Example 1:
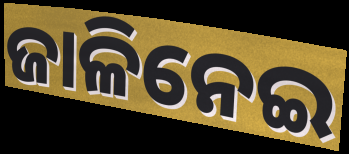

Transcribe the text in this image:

ଜାଳିନେଇ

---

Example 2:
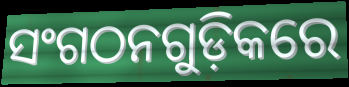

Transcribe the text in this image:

ସଂଗଠନଗୁଡ଼ିକରେ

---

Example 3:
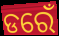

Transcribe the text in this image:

ଡରେଁ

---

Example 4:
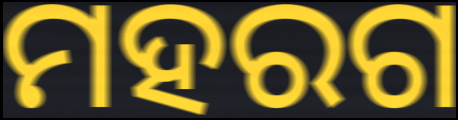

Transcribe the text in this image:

ମହରଗ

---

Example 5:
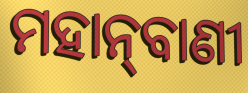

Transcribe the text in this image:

ମହାନ୍‌ବାଣୀ